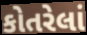
કોતરેલાં